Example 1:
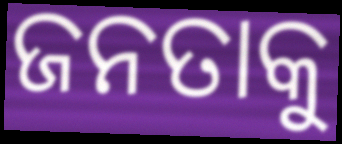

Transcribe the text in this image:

ଜନତାକୁ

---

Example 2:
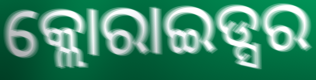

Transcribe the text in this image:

କ୍ଲୋରାଇଡ୍ସର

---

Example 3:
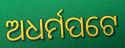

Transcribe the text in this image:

ଅଧର୍ମପଟେ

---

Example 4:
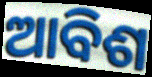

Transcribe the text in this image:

ଆବିଶ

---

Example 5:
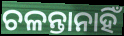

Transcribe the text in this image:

ଚଳନ୍ତାନାହିଁ